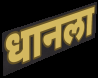
धानला